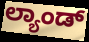
ಲ್ಯಾಂಡ್